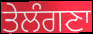
ਤੇਲੰਗਣਾ